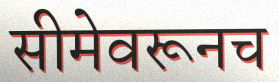
सीमेवरूनच